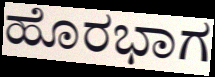
ಹೊರಭಾಗ